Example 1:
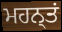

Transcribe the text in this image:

ਮਹਨ੍ਤਂ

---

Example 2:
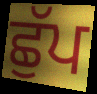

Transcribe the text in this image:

ਛੁੱਪ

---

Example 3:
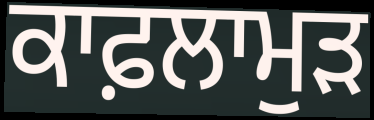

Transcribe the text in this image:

ਕਾਫ਼ਲਾਮੁੜ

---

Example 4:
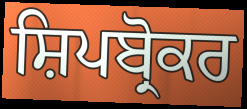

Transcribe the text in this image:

ਸ਼ਿਪਬ੍ਰੋਕਰ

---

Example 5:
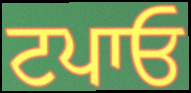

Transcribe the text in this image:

ਟਪਾਓ